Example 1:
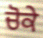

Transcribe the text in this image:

ਚੋਕੇ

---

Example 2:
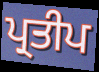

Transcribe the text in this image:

ਪ੍ਰਤੀਪ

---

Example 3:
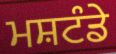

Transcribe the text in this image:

ਮਸ਼ਟੰਡੇ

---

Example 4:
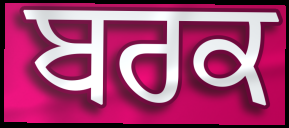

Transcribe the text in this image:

ਬਰਕ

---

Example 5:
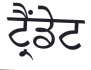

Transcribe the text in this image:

ਟ੍ਰੈਂਡੇਟ